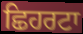
ਛਿਹਰਟਾ